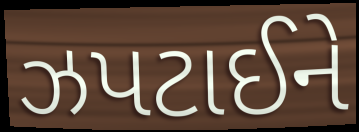
ઝપટાઈને